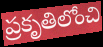
ప్రకృతిలోంచి